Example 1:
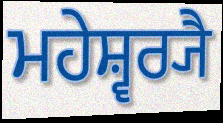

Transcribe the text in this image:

ਮਹੇਸ਼੍ਵਰ੍ਯੈ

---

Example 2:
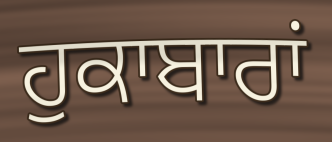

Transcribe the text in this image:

ਹੁਕਾਬਾਰਾਂ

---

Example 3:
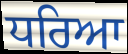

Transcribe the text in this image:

ਧਰਿਆ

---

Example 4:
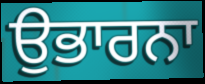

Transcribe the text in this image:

ਉਭਾਰਨਾ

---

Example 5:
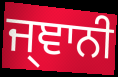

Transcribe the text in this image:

ਜ੍ਞਾਨੀ